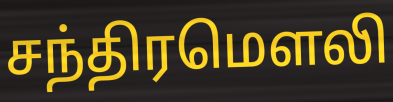
சந்திரமௌலி